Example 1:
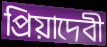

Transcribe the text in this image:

প্রিয়াদেবী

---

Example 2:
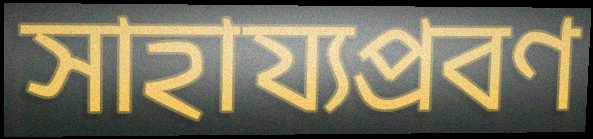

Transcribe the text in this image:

সাহায্যপ্রবণ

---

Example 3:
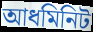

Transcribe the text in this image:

আধমিনিট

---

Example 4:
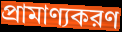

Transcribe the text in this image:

প্রামাণ্যকরণ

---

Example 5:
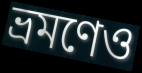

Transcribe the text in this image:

ভ্রমণেও